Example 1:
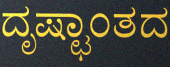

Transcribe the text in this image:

ದೃಷ್ಟಾಂತದ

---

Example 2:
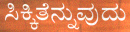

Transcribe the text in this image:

ಸಿಕ್ಕಿತೆನ್ನುವುದು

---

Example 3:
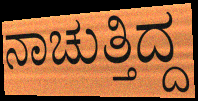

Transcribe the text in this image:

ನಾಚುತ್ತಿದ್ದ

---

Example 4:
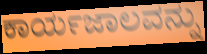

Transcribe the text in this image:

ಕಾರ್ಯಜಾಲವನ್ನು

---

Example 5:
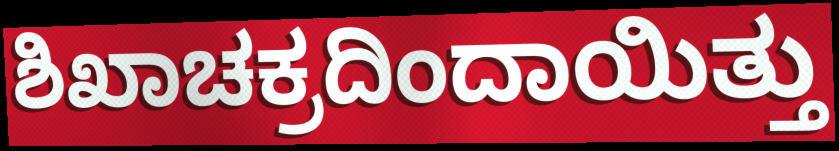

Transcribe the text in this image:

ಶಿಖಾಚಕ್ರದಿಂದಾಯಿತ್ತು